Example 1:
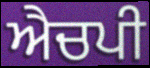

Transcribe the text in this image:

ਐਚਪੀ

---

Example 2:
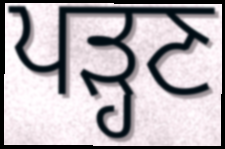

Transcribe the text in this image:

ਪੜ੍ਹਣ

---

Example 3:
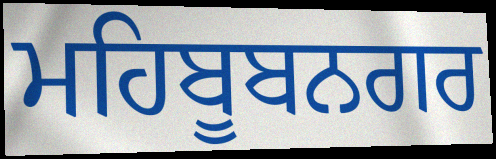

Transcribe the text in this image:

ਮਹਿਬੂਬਨਗਰ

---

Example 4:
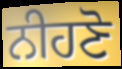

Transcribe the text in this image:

ਨੀਹਣੋ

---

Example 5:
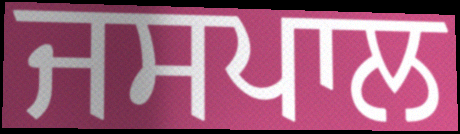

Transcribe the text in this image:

ਜਸਪਾਲ